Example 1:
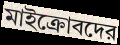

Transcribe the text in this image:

মাইক্রোবদের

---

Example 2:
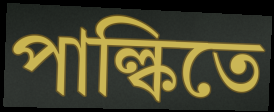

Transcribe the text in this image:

পাল্কিতে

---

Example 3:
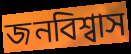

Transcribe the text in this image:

জনবিশ্বাস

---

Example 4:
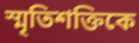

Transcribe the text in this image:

স্মৃতিশক্তিকে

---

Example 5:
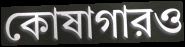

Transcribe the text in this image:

কোষাগারও